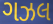
ગઝલ